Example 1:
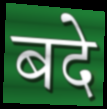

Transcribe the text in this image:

बदे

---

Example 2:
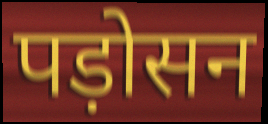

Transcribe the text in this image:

पड़ोसन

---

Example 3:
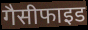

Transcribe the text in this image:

गैसीफाइड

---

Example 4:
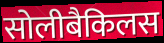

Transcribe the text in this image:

सोलीबैकिलस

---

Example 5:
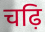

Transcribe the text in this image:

चढ़ि